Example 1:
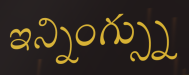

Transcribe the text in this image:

ఇన్నింగ్స్ను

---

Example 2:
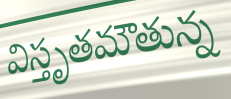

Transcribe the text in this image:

విస్తృతమౌతున్న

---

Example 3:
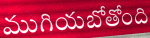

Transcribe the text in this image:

ముగియబోతోంది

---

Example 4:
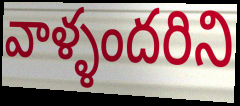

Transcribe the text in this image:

వాళ్ళందరిని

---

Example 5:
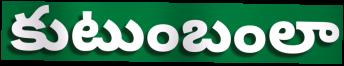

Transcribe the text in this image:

కుటుంబంలా